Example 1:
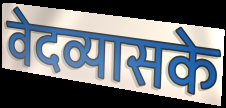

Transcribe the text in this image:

वेदव्यासके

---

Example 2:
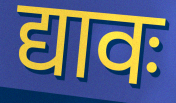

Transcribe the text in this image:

द्यावः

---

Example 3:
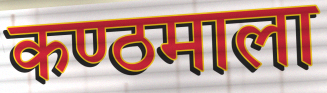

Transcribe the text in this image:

कण्ठमाला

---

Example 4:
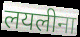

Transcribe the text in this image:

लयलीना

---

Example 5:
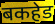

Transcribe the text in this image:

बकहेड